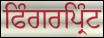
ਫਿੰਗਰਪ੍ਰਿੰਟ